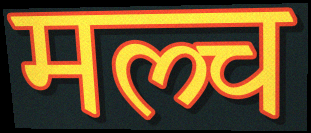
मल्च